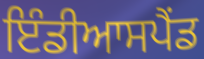
ਇੰਡੀਆਸਪੈਂਡ